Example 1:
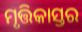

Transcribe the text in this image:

ମୃତ୍ତିକାସ୍ତର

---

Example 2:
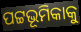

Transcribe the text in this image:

ପଟ୍ଟଭୂମିକାକୁ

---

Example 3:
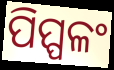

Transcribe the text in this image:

ପିପ୍ପଳଂ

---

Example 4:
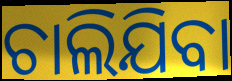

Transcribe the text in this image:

ଚାଲିଯିବା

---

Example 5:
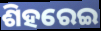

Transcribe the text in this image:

ଶିହରେଇ